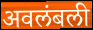
अवलंबली